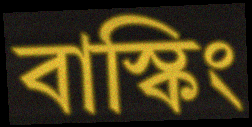
বাস্কিং